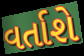
વર્તાશે